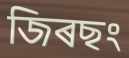
জিৰছং